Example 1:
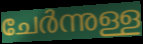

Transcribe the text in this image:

ചേർന്നുള്ള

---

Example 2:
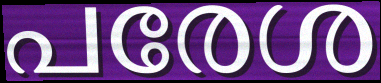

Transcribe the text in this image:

പരേശ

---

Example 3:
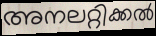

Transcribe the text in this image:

അനലറ്റിക്കൽ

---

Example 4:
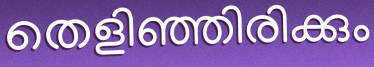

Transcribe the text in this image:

തെളിഞ്ഞിരിക്കും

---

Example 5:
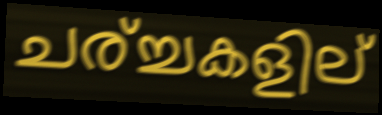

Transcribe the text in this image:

ചര്ച്ചകളില്